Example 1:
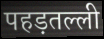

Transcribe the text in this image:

पहड़तल्ली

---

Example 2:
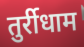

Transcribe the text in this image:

तुर्रीधाम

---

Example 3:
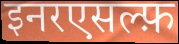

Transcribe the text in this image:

इनरएसल्फ़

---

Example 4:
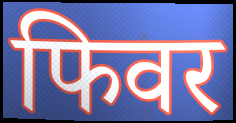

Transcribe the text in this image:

फिवर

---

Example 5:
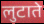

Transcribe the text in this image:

लुटाते